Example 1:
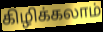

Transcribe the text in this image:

கிழிக்கலாம்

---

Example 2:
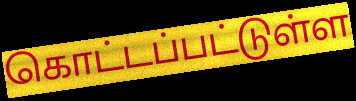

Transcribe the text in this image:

கொட்டப்பட்டுள்ள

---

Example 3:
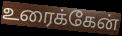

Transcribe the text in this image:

உரைக்கேன்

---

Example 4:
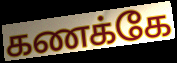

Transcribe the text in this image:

கணக்கே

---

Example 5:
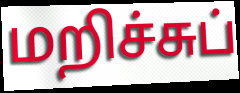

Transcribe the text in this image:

மறிச்சுப்